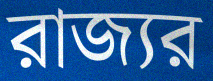
রাজ্যর